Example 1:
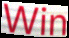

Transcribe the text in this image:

Win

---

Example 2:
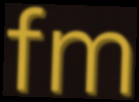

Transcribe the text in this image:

fm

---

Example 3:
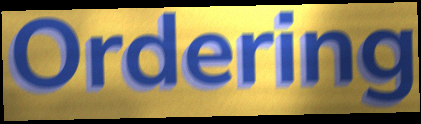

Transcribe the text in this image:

Ordering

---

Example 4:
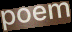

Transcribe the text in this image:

poem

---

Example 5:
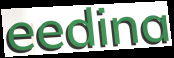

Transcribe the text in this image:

eedina